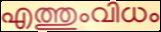
എത്തുംവിധം